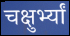
चक्षुर्भ्यां